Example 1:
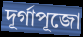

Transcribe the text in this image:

দূর্গাপূজো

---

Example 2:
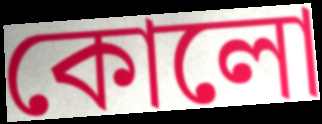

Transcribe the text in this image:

কোলো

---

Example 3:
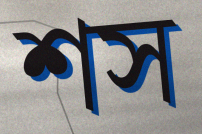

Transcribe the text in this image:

শস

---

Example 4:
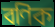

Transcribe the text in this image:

বণিক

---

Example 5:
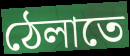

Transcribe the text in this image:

ঠেলাতে